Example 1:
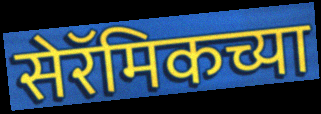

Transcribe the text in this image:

सेरॅमिकच्या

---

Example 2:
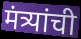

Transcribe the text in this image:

मंत्र्यांची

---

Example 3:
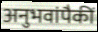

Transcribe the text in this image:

अनुभवांपैकीं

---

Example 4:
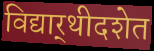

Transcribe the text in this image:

विद्यार्थीदशेत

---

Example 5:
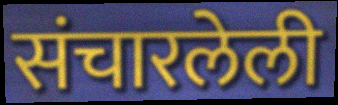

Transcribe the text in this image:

संचारलेली